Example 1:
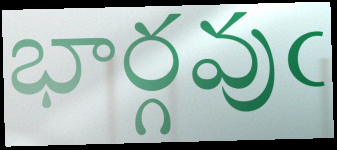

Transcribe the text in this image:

భార్గవుఁ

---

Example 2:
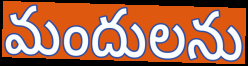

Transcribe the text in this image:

మందులను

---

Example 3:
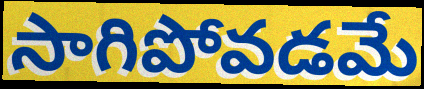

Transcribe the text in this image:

సాగిపోవడమే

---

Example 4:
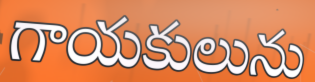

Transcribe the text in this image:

గాయకులును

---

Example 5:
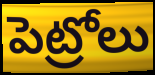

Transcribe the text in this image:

పెట్రోలు